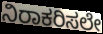
ನಿರಾಕರಿಸಲೇ